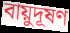
বায়ুদূষণ